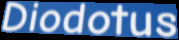
Diodotus